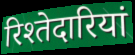
रिश्तेदारियां